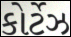
કોર્ટેઝ